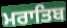
ਮਰਾਤਿਬ